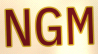
NGM